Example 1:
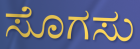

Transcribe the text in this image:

ಸೊಗಸು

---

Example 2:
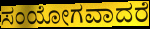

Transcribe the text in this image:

ಸಂಯೋಗವಾದರೆ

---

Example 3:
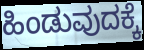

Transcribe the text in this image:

ಹಿಂಡುವುದಕ್ಕೆ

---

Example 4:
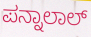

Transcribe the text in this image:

ಪನ್ನಾಲಾಲ್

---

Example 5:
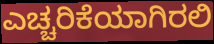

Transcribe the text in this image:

ಎಚ್ಚರಿಕೆಯಾಗಿರಲಿ